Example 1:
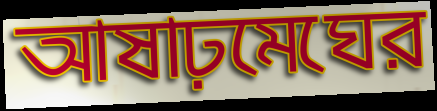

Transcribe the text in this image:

আষাঢ়মেঘের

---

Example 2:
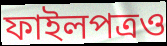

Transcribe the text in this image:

ফাইলপত্রও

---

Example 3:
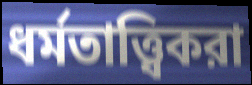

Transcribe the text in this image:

ধর্মতাত্ত্বিকরা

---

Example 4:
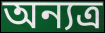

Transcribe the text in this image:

অন্যত্র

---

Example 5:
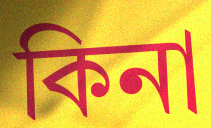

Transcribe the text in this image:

কিনা